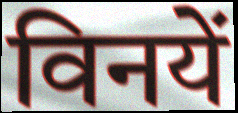
विनयें